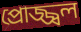
প্ৰোজ্জ্বল